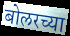
बोलरच्या